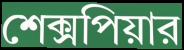
শেক্সপিয়ার